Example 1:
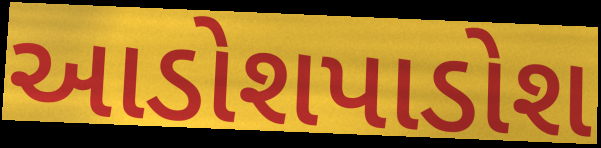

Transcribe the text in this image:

આડોશપાડોશ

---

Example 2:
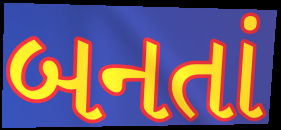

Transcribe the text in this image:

બનતાં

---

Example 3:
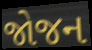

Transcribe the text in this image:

જોજન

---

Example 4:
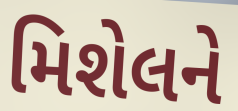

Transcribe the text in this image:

મિશેલને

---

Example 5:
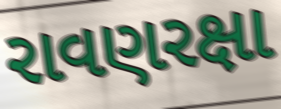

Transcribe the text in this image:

રાવણરક્ષા